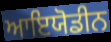
ਆਇਯੋਡੀਨ